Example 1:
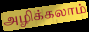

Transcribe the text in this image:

அழிக்கலாம்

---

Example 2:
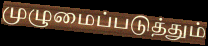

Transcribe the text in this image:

முழுமைப்படுத்தும்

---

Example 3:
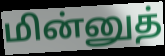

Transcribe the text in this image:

மின்னுத்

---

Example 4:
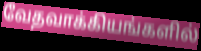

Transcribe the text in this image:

வேதவாக்கியங்களில்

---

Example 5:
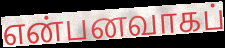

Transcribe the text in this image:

என்பனவாகப்